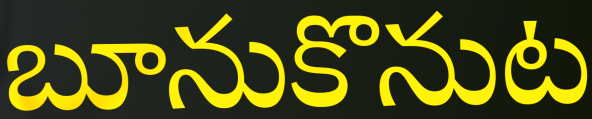
బూనుకొనుట